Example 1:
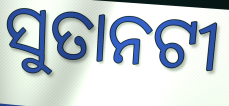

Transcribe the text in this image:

ସୁତାନଟୀ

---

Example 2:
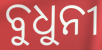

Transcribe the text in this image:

ବୁଧୁନୀ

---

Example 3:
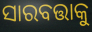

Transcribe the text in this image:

ସାରବତ୍ତାକୁ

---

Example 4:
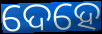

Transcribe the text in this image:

ଦେହେ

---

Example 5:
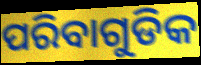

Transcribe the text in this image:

ପରିବାଗୁଡିକ